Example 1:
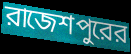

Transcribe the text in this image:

রাজেশপুরের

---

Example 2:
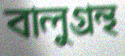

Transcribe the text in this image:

বালুগ্রন্থ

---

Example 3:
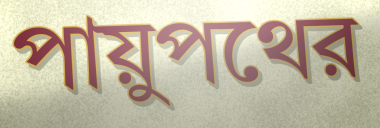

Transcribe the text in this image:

পায়ুপথের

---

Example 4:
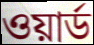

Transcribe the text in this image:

ওয়ার্ড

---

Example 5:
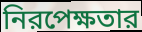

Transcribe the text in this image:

নিরপেক্ষতার